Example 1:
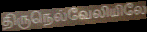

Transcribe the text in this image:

திருநெல்வேலியிலே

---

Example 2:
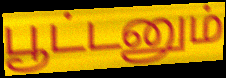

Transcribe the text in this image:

பூட்டனும்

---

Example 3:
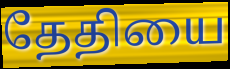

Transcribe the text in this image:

தேதியை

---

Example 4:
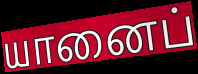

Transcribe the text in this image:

யானைப்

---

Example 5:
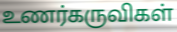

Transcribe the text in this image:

உணர்கருவிகள்